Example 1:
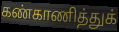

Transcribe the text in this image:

கண்காணித்துக்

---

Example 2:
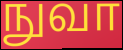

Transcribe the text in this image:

நுவா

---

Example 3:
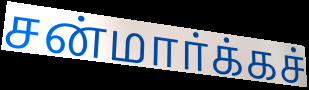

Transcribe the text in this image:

சன்மார்க்கச்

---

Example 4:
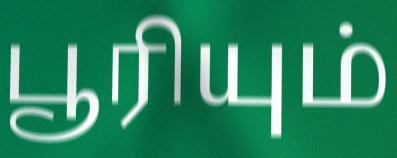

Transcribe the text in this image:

பூரியும்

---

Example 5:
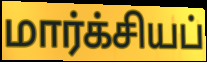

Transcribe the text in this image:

மார்க்சியப்